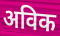
अविक